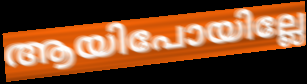
ആയിപോയില്ലേ